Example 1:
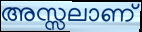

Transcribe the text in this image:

അസ്സലാണ്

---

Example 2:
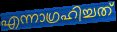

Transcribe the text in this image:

എന്നാഗ്രഹിച്ചത്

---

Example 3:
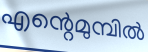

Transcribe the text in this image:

എന്റെമുമ്പിൽ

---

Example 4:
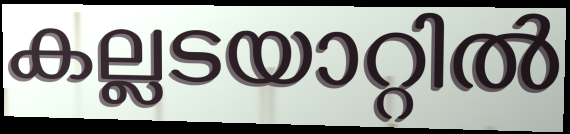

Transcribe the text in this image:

കല്ലടയാറ്റിൽ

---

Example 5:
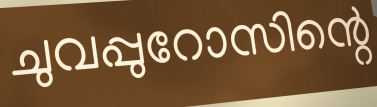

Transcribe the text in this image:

ചുവപ്പുറോസിന്റെ